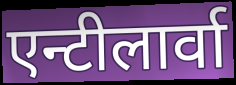
एन्टीलार्वा